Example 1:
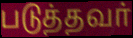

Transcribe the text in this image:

படுத்தவர்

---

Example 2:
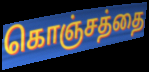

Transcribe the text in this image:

கொஞ்சத்தை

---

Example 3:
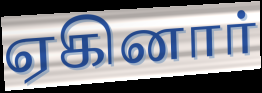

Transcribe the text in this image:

ஏகினார்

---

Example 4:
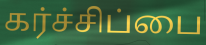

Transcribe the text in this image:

கர்ச்சிப்பை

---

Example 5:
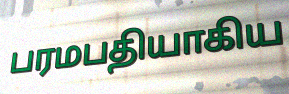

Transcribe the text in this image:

பரமபதியாகிய